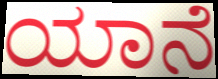
ಯಾನೆ